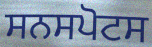
ਸਨਸਪੋਟਸ